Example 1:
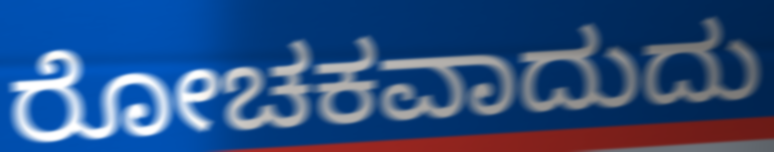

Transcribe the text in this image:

ರೋಚಕವಾದುದು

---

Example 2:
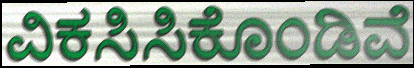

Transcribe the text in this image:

ವಿಕಸಿಸಿಕೊಂಡಿವೆ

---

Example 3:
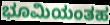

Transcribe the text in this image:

ಭೂಮಿಯಂತಹ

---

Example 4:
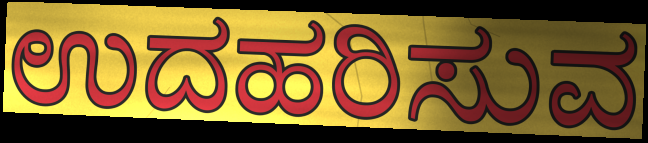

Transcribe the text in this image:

ಉದಹರಿಸುವ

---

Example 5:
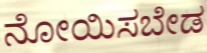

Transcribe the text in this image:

ನೋಯಿಸಬೇಡ